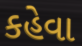
કહેવા